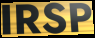
IRSP